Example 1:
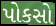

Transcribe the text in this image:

પોકસો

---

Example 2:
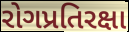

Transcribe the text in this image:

રોગપ્રતિરક્ષા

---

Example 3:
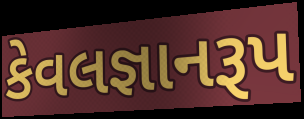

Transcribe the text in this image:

કેવલજ્ઞાનરૂપ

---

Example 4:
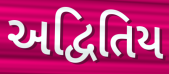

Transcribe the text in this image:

અદ્વિતિય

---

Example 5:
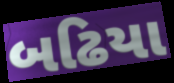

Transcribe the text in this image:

બઢિયા